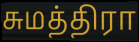
சுமத்திரா